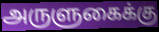
அருளுகைக்கு